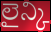
లైన్కి